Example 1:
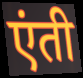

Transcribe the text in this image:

एंती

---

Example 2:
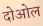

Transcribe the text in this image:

दोओल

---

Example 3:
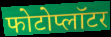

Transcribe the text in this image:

फोटोप्लॉटर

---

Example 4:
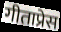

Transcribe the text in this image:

गीताप्रेस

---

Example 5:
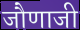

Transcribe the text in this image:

जौणाजी